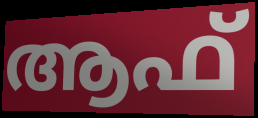
ആഫ്